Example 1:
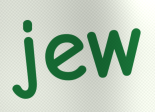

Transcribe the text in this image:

jew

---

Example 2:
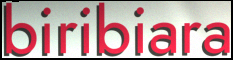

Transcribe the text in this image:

biribiara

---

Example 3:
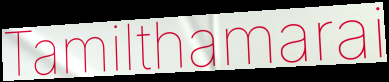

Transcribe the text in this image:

Tamilthamarai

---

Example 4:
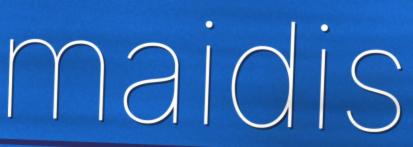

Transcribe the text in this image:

maidis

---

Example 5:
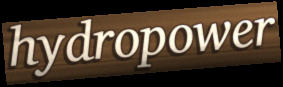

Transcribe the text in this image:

hydropower